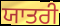
ਯਾਤਰੀ